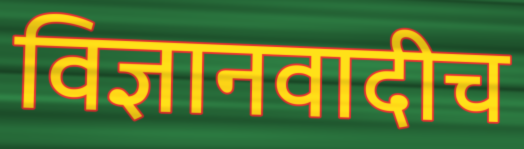
विज्ञानवादीच